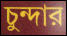
চুন্দার